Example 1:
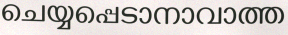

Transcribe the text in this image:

ചെയ്യപ്പെടാനാവാത്ത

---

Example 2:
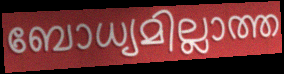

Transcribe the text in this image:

ബോധ്യമില്ലാത്ത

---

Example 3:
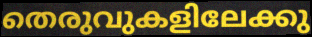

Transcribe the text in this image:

തെരുവുകളിലേക്കു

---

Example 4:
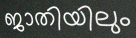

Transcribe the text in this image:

ജാതിയിലും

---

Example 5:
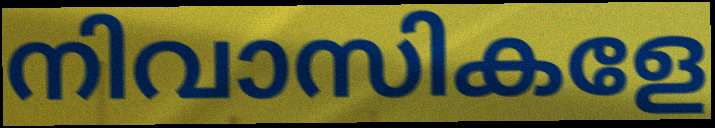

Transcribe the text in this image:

നിവാസികളേ